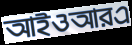
আইওআরএ